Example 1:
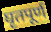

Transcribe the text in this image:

घृतपूर्ण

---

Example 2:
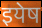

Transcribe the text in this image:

इयेष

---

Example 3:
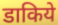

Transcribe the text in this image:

डाकिये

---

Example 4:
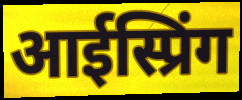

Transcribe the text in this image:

आईस्प्रिंग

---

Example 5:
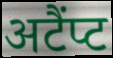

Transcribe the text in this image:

अटैंप्ट